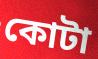
কোটা